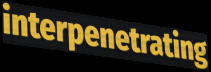
interpenetrating